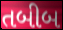
તબીબ